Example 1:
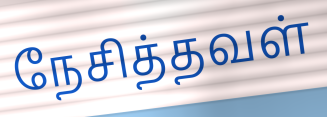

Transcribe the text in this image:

நேசித்தவள்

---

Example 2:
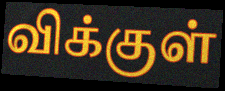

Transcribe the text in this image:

விக்குள்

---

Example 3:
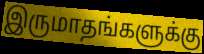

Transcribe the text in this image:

இருமாதங்களுக்கு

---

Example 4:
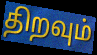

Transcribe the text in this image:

திறவும்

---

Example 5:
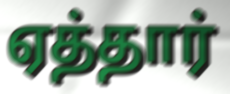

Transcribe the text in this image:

ஏத்தார்